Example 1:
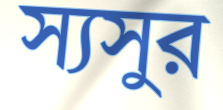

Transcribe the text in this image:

স্যসুর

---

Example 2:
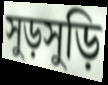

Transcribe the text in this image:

সুড়সুড়ি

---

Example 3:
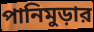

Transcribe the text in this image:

পানিমুড়ার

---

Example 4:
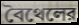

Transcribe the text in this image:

বৈথেলের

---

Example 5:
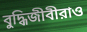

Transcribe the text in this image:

বুদ্ধিজীবীরাও